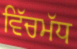
ਵਿੱਚਮੱਧ